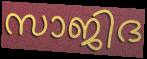
സാജിദ